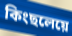
কিংছলেয়ে